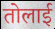
तोलाई